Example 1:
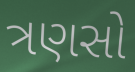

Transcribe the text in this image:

ત્રણસો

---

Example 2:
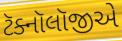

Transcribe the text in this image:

ટૅક્નૉલૉજીએ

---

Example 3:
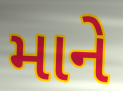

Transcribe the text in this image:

માને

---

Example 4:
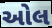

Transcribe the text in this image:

ઓલ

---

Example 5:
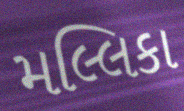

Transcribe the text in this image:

મલ્લિકા